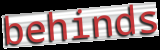
behinds